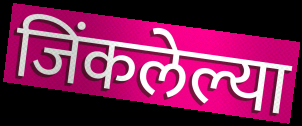
जिंकलेल्या